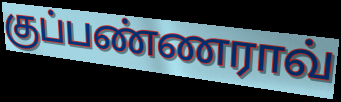
குப்பண்ணராவ்